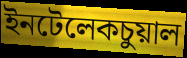
ইনটেলেকচুয়াল